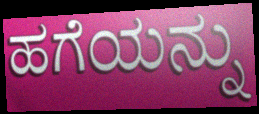
ಹಗೆಯನ್ನು